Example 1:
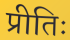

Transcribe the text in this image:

प्रीतिः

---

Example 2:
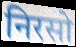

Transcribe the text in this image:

निरसो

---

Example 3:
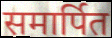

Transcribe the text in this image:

समार्पित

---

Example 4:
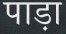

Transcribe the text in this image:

पाड़ा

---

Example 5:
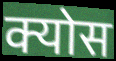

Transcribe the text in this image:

क्योस